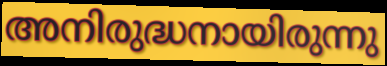
അനിരുദ്ധനായിരുന്നു